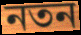
নতন